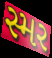
સ્મર